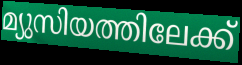
മ്യുസിയത്തിലേക്ക്